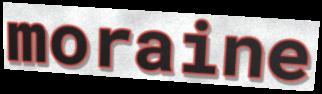
moraine